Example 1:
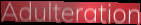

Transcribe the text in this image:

Adulteration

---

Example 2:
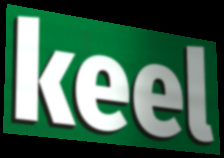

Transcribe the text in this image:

keel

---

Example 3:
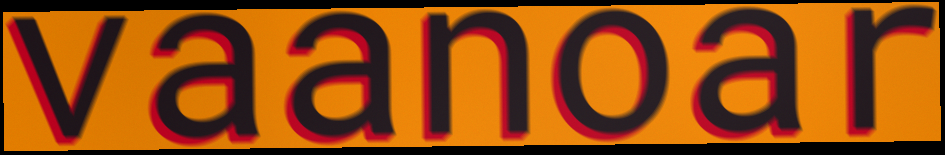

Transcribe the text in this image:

vaanoar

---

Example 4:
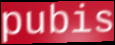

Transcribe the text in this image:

pubis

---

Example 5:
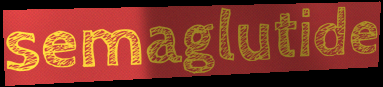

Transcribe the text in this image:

semaglutide